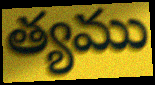
త్యము